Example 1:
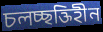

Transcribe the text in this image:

চলচ্ছক্তিহীন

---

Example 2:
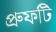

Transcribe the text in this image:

প্রুফটি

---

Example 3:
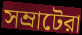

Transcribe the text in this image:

সম্রাটেরা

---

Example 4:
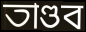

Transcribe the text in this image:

তাণ্ডব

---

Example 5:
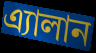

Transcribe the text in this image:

এ্যালান